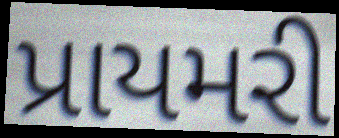
પ્રાયમરી